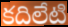
కదిలేటి